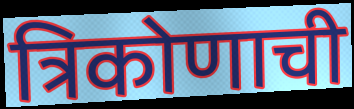
त्रिकोणाची